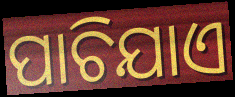
ପାଚିଯାଏ